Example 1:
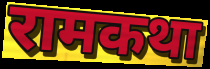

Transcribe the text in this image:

रामकथा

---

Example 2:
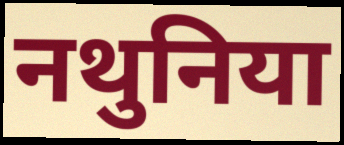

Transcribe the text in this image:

नथुनिया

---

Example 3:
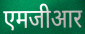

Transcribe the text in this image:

एमजीआर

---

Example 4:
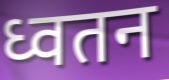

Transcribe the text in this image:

ध्वतन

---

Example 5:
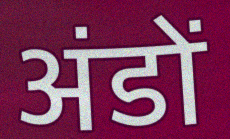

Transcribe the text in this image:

अंडों